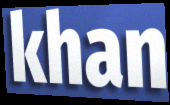
khan